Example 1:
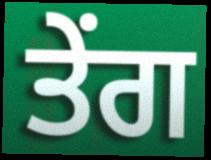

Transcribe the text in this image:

ਤੇਂਗ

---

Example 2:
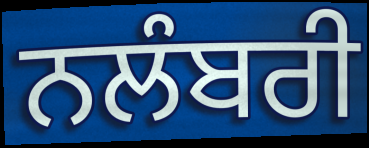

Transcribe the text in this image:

ਨਲੰਬਰੀ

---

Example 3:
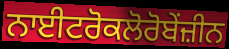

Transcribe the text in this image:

ਨਾਈਟਰੋਕਲੋਰੋਬੇਂਜ਼ੀਨ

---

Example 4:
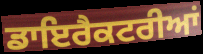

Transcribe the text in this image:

ਡਾਇਰੈਕਟਰੀਆਂ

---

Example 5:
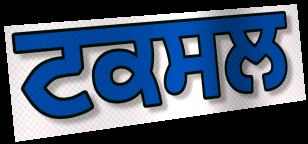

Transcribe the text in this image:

ਟਕਸਲ